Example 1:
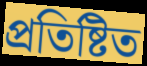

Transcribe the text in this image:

প্রতিষ্টিত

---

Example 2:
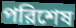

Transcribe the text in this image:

পরিশেষ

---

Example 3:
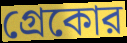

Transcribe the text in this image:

গ্রেকোর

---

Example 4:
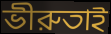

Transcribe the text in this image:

ভীরুতাই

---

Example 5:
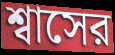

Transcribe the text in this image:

শ্বাসের